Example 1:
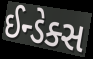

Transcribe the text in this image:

ઈન્ડેક્સ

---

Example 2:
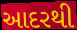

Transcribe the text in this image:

આદરથી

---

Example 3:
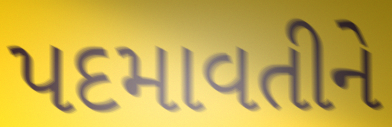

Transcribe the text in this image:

પદમાવતીને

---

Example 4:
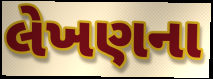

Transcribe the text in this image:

લેખણના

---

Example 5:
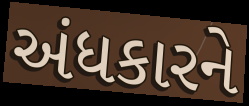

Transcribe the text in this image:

અંધકારને